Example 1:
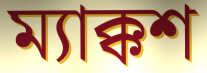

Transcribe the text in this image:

ম্যাক্কশ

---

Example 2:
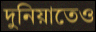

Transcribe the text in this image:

দুনিয়াতেও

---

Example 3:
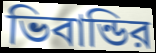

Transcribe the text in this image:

ভিবান্ডির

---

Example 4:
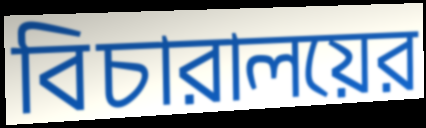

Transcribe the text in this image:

বিচারালয়ের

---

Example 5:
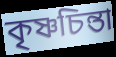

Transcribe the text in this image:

কৃষ্ণচিন্তা